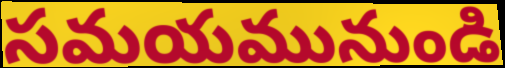
సమయమునుండి